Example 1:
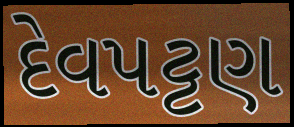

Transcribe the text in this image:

દેવપટ્ટણ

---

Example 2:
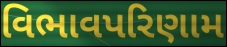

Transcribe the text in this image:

વિભાવપરિણામ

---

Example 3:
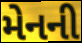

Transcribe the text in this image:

મેનની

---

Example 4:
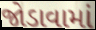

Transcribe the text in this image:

જોડાવામાં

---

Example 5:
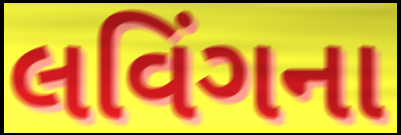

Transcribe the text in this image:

લવિંગના